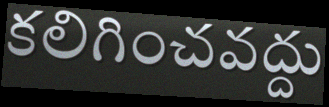
కలిగించవద్దు